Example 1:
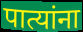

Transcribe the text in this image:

पात्यांना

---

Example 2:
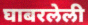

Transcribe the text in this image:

घाबरलेली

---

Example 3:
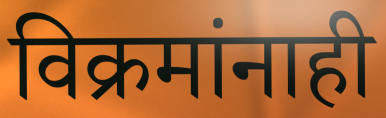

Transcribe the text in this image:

विक्रमांनाही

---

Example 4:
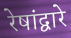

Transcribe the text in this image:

रेषांद्वारे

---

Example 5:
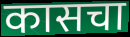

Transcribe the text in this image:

कासचा